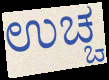
ಉಚ್ಚ